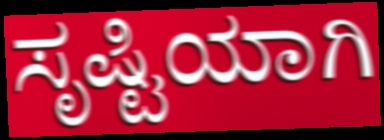
ಸೃಷ್ಟಿಯಾಗಿ